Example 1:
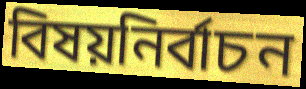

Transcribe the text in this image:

বিষয়নির্বাচন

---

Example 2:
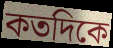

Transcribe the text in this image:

কতদিকে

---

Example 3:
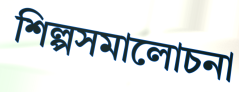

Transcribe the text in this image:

শিল্পসমালোচনা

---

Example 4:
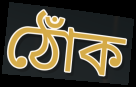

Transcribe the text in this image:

ঠোঁক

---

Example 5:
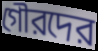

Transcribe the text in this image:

গৌরদের